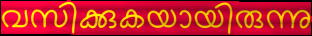
വസിക്കുകയായിരുന്നു